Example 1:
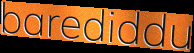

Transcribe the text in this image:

barediddu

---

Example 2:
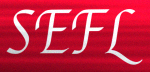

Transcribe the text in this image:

SEFL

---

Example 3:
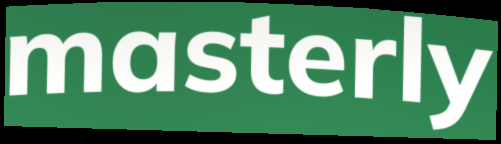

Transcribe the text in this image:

masterly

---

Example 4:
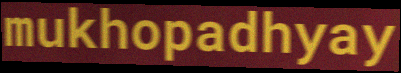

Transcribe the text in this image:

mukhopadhyay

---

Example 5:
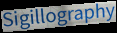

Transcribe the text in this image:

Sigillography